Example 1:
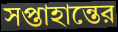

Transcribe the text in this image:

সপ্তাহান্তের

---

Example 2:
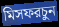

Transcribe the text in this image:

মিসফরচুন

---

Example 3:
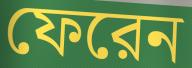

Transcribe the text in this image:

ফেরেন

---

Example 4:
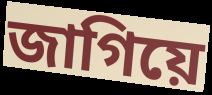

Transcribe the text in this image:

জাগিয়ে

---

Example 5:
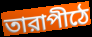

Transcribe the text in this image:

তারাপীঠে